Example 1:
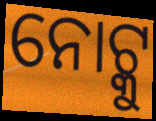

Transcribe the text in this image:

ନୋଟ୍କୁ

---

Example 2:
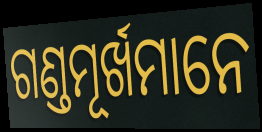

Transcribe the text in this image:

ଗଣ୍ଡମୂର୍ଖମାନେ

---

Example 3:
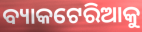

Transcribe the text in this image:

ବ୍ୟାକଟେରିଆକୁ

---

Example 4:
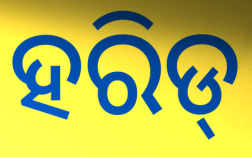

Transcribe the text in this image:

ହରିଡ୍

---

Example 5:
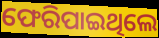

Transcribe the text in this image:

ଫେରିପାଇଥିଲେ